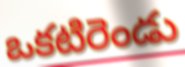
ఒకటిరెండు